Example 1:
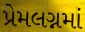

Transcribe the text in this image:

પ્રેમલગ્નમાં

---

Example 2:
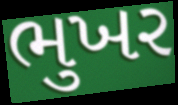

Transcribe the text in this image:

ભુખર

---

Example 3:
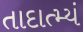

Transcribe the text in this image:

તાદાત્મ્યં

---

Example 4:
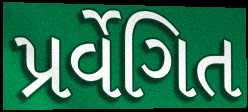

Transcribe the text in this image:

પ્રર્વેગિત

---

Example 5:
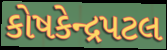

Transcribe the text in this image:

કોષકેન્દ્રપટલ